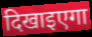
दिखाइएगा